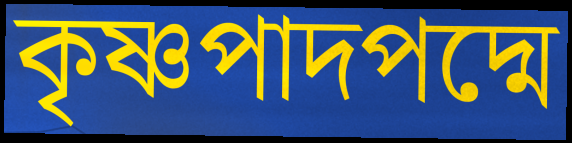
কৃষ্ণপাদপদ্মে